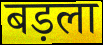
बड़ला